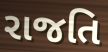
રાજતિ